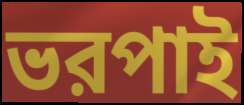
ভরপাই